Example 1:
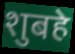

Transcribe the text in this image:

शुबहे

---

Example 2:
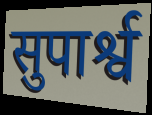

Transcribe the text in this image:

सुपार्श्व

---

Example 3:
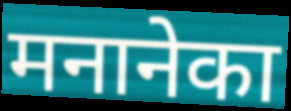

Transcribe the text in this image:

मनानेका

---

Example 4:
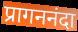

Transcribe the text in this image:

प्रागननंदा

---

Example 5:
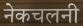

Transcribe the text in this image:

नेकचलनी